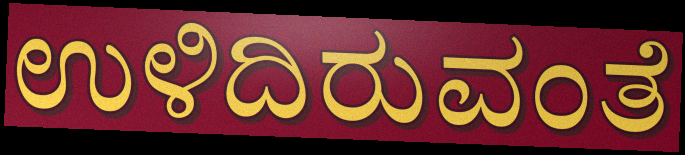
ಉಳಿದಿರುವಂತೆ